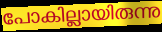
പോകില്ലായിരുന്നു